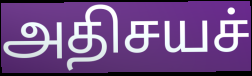
அதிசயச்